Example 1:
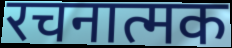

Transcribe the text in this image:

रचनात्मक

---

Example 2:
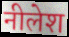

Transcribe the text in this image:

नीलेश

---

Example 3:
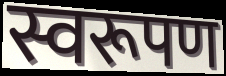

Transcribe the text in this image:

स्वरूपण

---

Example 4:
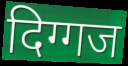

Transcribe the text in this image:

दिग्गज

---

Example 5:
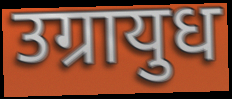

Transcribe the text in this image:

उग्रायुध